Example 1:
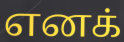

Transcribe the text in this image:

எனக்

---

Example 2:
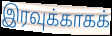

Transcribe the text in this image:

இரவுக்காகக்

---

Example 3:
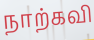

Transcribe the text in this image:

நாற்கவி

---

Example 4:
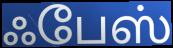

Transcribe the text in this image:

ஃபேஸ்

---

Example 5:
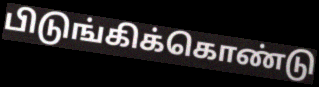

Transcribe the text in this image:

பிடுங்கிக்கொண்டு